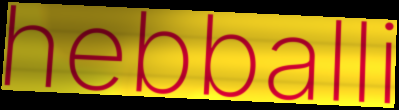
hebballi